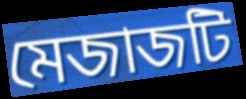
মেজাজটি